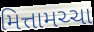
મિત્તામચ્ચા